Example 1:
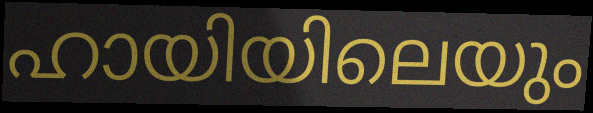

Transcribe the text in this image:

ഹായിയിലെയും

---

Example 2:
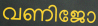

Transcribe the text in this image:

വണിജോ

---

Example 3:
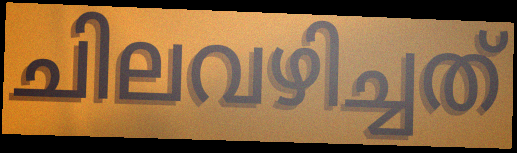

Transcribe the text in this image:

ചിലവഴിച്ചത്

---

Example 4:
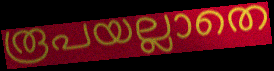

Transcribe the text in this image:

രൂപയല്ലാതെ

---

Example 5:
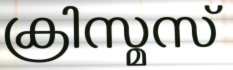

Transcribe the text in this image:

ക്രിസ്മസ്